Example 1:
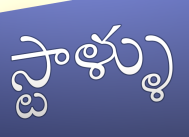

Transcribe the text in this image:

స్టాళ్ళు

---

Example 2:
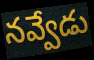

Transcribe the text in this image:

నవ్వేడు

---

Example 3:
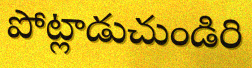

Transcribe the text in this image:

పోట్లాడుచుండిరి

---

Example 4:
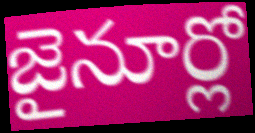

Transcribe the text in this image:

జైనూర్లో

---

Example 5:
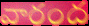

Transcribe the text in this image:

వారంద